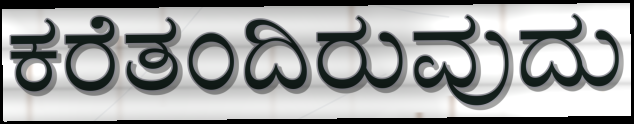
ಕರೆತಂದಿರುವುದು